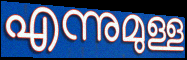
എന്നുമുള്ള